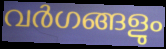
വർഗങ്ങളും